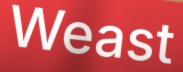
Weast